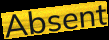
Absent